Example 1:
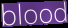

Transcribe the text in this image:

blood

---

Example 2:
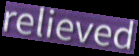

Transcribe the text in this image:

relieved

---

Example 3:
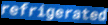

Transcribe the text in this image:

refrigerated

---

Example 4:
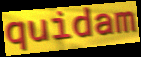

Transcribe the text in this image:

quidam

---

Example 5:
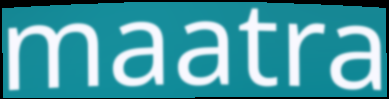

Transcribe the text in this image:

maatra